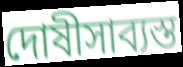
দোষীসাব্যস্ত